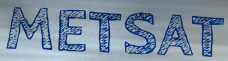
METSAT